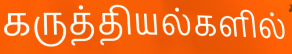
கருத்தியல்களில்